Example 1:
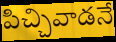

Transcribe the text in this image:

పిచ్చివాడనే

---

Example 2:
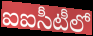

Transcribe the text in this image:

ఐఐసీటీలో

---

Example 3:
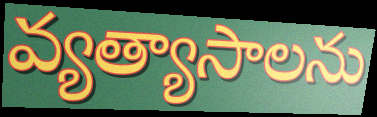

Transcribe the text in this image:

వ్యత్యాసాలను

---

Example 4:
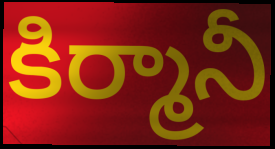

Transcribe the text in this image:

కిర్మానీ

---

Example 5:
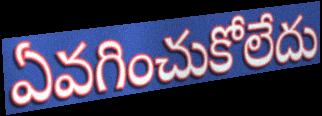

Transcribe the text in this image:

ఏవగించుకోలేదు